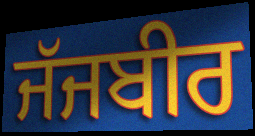
ਜੱਜਬੀਰ